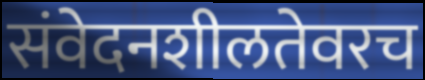
संवेदनशीलतेवरच